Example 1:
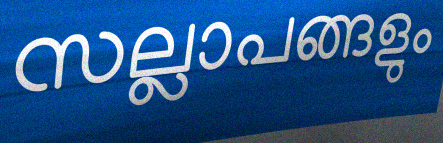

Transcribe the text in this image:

സല്ലാപങ്ങളും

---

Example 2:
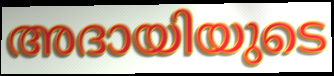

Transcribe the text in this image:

അദായിയുടെ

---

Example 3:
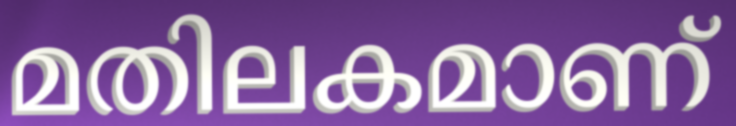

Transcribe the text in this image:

മതിലകമാണ്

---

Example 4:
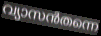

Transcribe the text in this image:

വ്യാസൻതന്നെ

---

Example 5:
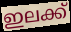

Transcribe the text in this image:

ഇലക്ക്